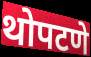
थोपटणे